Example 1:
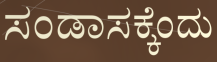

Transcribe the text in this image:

ಸಂಡಾಸಕ್ಕೆಂದು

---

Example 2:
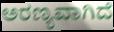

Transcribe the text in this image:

ಅರಣ್ಯವಾಗಿದೆ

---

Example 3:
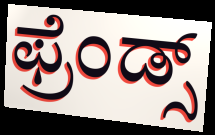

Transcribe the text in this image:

ಫ್ರೆಂಡ್ಸ್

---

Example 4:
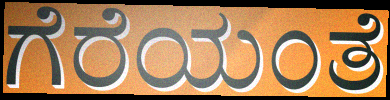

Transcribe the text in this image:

ಗೆರೆಯಂತೆ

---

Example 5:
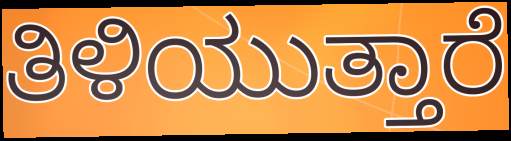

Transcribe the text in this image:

ತಿಳಿಯುತ್ತಾರೆ